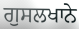
ਗੁਸਲਖਾਨੇ